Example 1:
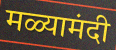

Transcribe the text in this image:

मळ्यामंदी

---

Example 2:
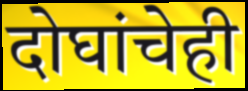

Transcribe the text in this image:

दोघांचेही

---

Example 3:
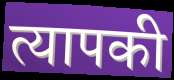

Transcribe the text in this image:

त्यापकी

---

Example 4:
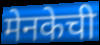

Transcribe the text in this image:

मेनकेची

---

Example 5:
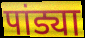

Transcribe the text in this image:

पांड्या